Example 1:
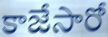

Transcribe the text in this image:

కాజేసారో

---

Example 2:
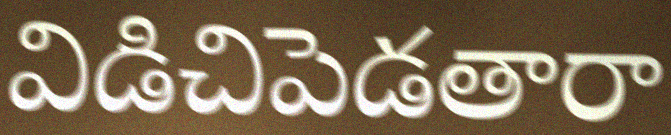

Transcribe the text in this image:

విడిచిపెడతారా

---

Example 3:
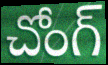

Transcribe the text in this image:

చోంగ్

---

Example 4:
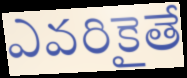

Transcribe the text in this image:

ఎవరికైతే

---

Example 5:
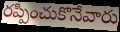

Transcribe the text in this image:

రప్పించుకొనేవారు